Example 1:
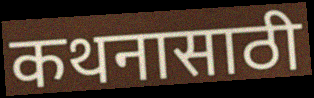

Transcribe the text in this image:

कथनासाठी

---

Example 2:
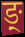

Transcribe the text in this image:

ङ्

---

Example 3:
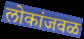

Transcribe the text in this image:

लोकांजवळ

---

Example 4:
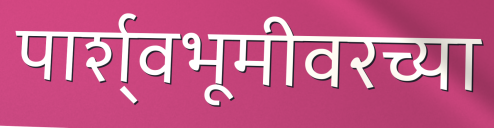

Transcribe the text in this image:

पार्श्वभूमीवरच्या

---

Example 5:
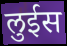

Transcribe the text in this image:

लुईस